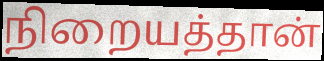
நிறையத்தான்